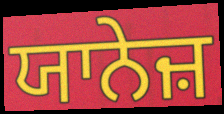
ਯਾਨੇਜ਼